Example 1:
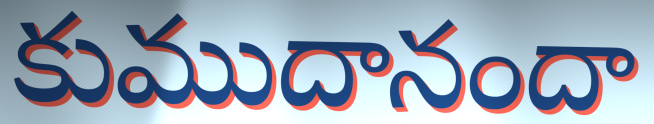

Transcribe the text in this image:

కుముదానందా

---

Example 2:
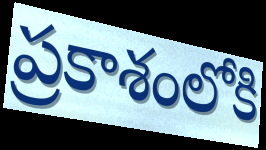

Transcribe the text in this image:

ప్రకాశంలోకి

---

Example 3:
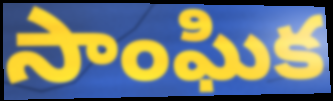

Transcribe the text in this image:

సాంఘిక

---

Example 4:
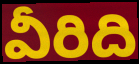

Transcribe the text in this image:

వీరిది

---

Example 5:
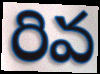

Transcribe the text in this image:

రివ